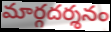
మార్గదర్శనం